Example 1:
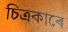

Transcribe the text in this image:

চিত্ৰকাৰে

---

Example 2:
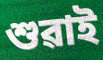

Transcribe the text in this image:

শুৱাই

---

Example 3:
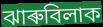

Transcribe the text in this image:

ঝাৰুবিলাক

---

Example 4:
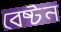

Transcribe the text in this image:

বেষ্টন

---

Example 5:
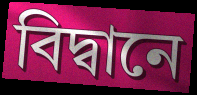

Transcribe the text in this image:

বিদ্বানে